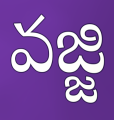
వజ్జి